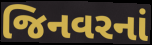
જિનવરનાં